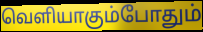
வெளியாகும்போதும்